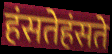
हंसतेहंसते